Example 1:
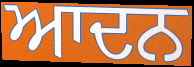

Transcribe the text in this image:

ਆਦਨ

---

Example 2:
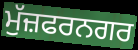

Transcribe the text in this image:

ਮੁੱਜ਼ਫਰਨਗਰ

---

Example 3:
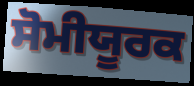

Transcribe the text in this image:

ਸੋਮੀਯੂਰਕ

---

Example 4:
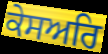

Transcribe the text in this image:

ਕੇਸਅਰਿ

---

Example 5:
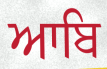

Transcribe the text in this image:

ਆਬਿ